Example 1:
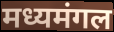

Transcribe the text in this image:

मध्यमंगल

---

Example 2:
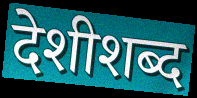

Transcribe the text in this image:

देशीशब्द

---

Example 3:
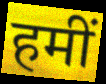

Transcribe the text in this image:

हमीं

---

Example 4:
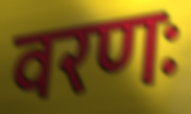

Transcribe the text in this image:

वरणः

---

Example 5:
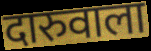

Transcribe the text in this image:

दारुवाला